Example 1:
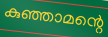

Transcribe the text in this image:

കുഞ്ഞാമന്റെ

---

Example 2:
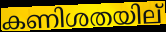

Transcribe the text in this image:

കണിശതയില്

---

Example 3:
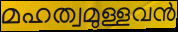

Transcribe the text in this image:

മഹത്വമുള്ളവൻ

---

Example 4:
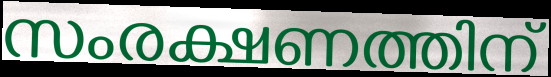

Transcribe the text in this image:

സംരക്ഷണത്തിന്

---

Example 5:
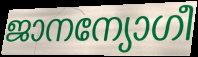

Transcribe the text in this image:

ജാനന്യോഗീ